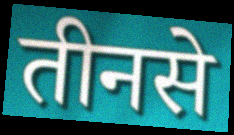
तीनसे